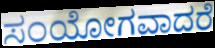
ಸಂಯೋಗವಾದರೆ